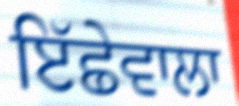
ਇੱਛੇਵਾਲਾ